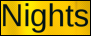
Nights